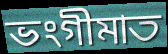
ভংগীমাত